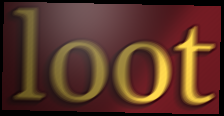
loot